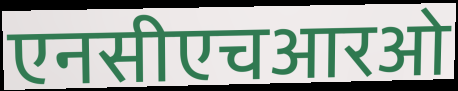
एनसीएचआरओ